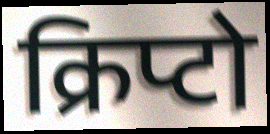
क्रिप्टो